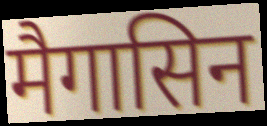
मैगासिन